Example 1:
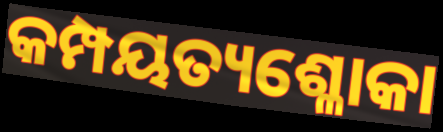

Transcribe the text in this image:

କମ୍ପୟତ୍ୟଶ୍ଳୋକା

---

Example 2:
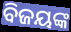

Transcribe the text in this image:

ବିଜୟଙ୍କ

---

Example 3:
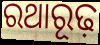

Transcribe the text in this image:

ରଥାରୂଢ଼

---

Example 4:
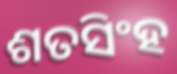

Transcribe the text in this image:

ଶତସିଂହ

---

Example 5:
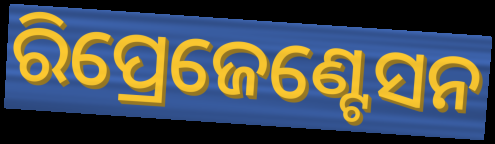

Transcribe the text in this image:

ରିପ୍ରେଜେଣ୍ଟେସନ